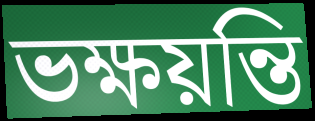
ভক্ষয়ন্তি